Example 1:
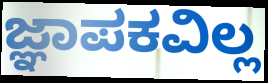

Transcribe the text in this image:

ಜ್ಞಾಪಕವಿಲ್ಲ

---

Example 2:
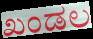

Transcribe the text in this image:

ಖಂಡಲ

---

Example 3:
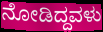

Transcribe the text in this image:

ನೋಡಿದ್ದವಳು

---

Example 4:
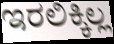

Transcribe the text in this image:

ಇರಲಿಕ್ಕಿಲ್ಲ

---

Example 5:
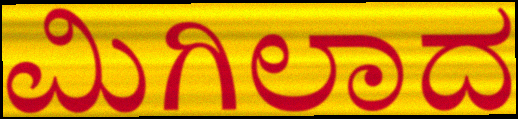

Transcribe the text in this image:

ಮಿಗಿಲಾದ